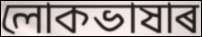
লোকভাষাৰ